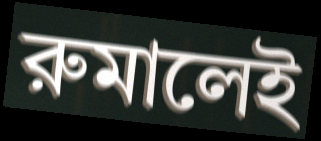
রুমালেই